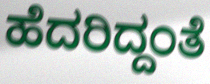
ಹೆದರಿದ್ದಂತೆ